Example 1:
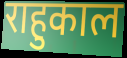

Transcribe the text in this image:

राहुकाल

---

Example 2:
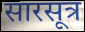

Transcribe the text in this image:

सारसूत्र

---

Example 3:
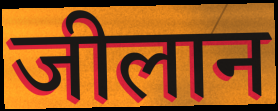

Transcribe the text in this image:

जीलान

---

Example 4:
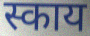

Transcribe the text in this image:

स्काय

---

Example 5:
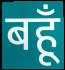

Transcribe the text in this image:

बहूँ